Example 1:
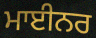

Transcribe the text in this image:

ਮਾਈਨਰ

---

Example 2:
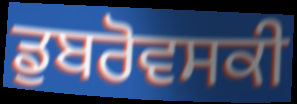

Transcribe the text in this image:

ਡੁਬਰੋਵਸਕੀ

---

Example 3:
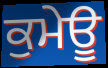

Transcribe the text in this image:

ਕੁਮੇਊ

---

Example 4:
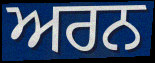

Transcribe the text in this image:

ਅਰਨ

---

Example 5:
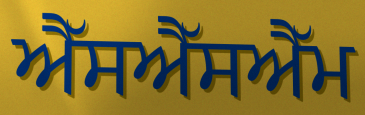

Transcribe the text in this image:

ਐੱਸਐੱਸਐੱਮ